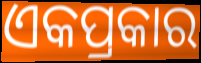
ଏକପ୍ରକାର